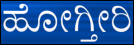
ಹೋಗ್ತೀರಿ